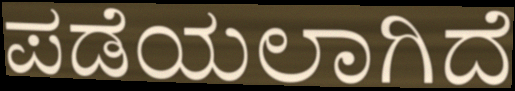
ಪಡೆಯಲಾಗಿದೆ